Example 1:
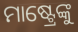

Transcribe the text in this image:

ମାଷ୍ଟ୍ରେଙ୍କୁ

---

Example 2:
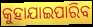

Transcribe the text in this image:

କୁହାଯାଇପାରିବ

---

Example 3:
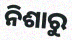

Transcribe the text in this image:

ନିଶାରୁ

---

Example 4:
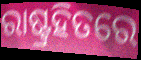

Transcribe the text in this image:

ରାଷ୍ଟ୍ରହିତରେ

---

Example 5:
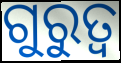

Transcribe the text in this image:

ଗୁରୁତ୍ବ